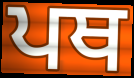
ਪਥ